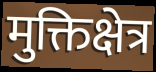
मुक्तिक्षेत्र